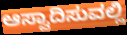
ಆಸ್ವಾದಿಸುವಲ್ಲಿ